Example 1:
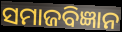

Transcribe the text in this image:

ସମାଜବିଜ୍ଞାନ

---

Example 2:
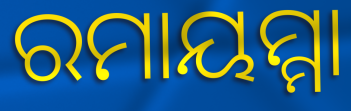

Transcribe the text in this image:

ରମାୟମ୍ମା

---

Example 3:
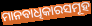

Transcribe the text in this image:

ମାନବାଧିକାରସମୂହ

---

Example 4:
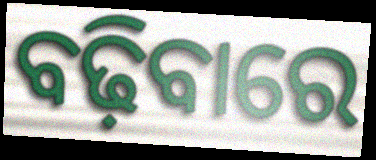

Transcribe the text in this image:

ବଢ଼ିବାରେ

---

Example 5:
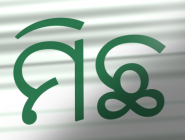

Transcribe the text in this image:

ମିଛ